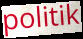
politik